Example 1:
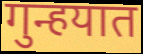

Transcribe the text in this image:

गुन्हयात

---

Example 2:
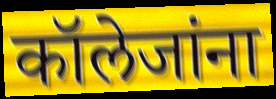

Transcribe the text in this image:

कॉलेजांना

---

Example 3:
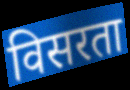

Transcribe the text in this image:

विसरता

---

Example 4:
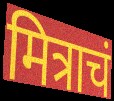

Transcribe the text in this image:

मित्राचं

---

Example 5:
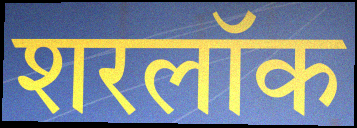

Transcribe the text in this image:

शरलॉक